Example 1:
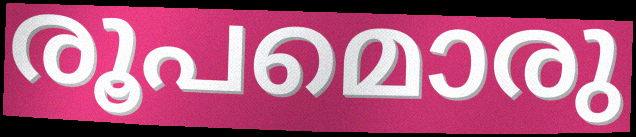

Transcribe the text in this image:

രൂപമൊരു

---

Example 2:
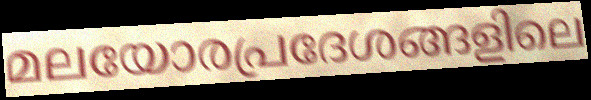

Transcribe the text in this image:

മലയോരപ്രദേശങ്ങളിലെ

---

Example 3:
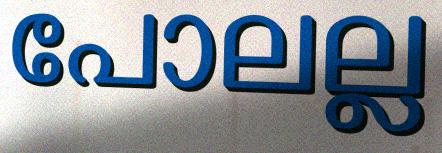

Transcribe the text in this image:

പോലല്ല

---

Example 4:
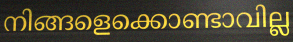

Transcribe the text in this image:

നിങ്ങളെക്കൊണ്ടാവില്ല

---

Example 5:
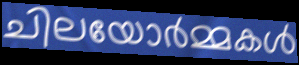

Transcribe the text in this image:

ചിലയോർമ്മകൾ